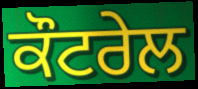
ਕੌਟਰੇਲ